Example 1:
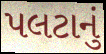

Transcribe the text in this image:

પલટાનું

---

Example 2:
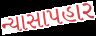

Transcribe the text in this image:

ન્યાસાપહાર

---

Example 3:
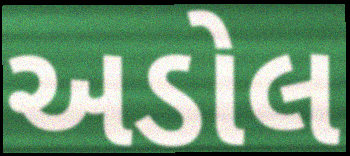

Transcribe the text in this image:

અડોલ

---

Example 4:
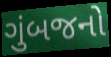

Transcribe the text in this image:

ગુંબજનો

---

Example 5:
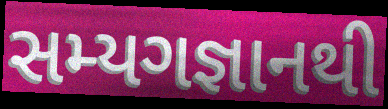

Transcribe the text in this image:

સમ્યગજ્ઞાનથી